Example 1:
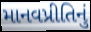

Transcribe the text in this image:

માનવપ્રીતિનું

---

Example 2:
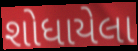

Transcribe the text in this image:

શોધાયેલા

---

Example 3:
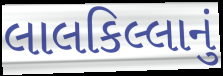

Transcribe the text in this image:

લાલકિલ્લાનું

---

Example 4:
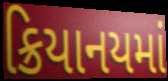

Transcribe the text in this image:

ક્રિયાનયમાં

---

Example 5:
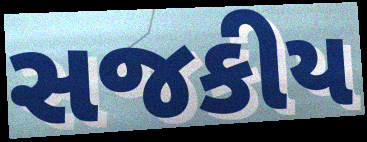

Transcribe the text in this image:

સજકીય